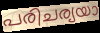
പരിചര്യയാ